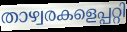
താഴ്വരകളെപ്പറ്റി